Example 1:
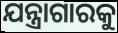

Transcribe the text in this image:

ଯନ୍ତ୍ରାଗାରକୁ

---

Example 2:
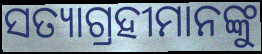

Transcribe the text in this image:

ସତ୍ୟାଗ୍ରହୀମାନଙ୍କୁ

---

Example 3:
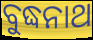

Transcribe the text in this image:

ବୁଦ୍ଧନାଥ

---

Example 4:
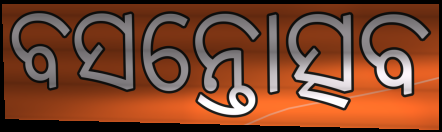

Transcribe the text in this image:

ବସନ୍ତୋତ୍ସବ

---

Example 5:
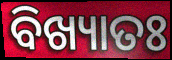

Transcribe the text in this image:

ବିଖ୍ୟାତଃ